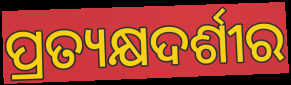
ପ୍ରତ୍ୟକ୍ଷଦର୍ଶୀର